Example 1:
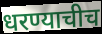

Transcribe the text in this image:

धरण्याचीच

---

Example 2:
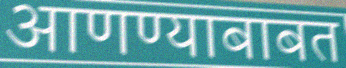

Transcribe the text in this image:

आणण्याबाबत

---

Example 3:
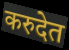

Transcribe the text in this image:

करुदेत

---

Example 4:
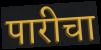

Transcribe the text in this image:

पारीचा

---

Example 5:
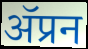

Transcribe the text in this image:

ॲप्रन